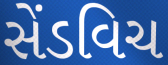
સેંડવિચ